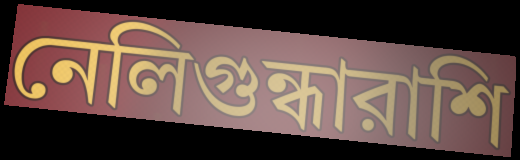
নেলিগুন্ধারাশি